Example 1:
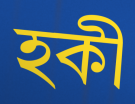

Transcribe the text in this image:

হকী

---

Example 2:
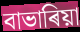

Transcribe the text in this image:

বাভাৰিয়া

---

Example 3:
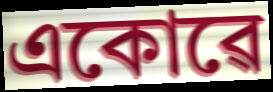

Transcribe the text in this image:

একোৱে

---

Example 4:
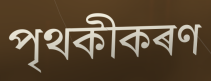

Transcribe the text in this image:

পৃথকীকৰণ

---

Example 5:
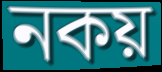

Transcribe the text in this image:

নকয়